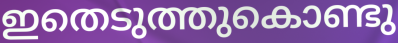
ഇതെടുത്തുകൊണ്ടു